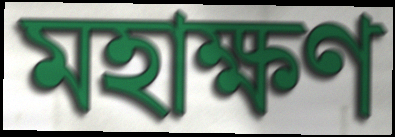
মহাক্ষণ